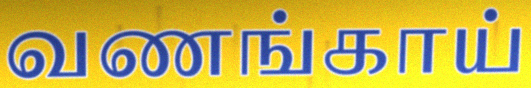
வணங்காய்